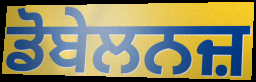
ਡੋਬੇਲਨਜ਼